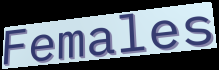
Females